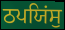
ਠਪਯਿਂਸੁ